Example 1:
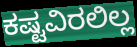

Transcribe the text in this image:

ಕಷ್ಟವಿರಲಿಲ್ಲ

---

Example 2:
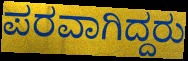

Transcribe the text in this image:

ಪರವಾಗಿದ್ದರು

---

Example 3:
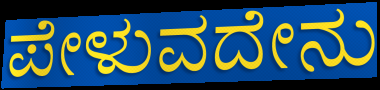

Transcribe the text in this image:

ಪೇಳುವದೇನು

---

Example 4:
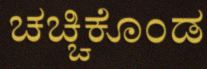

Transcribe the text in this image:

ಚಚ್ಚಿಕೊಂಡ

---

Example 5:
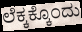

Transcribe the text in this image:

ಲೆಕ್ಕಕ್ಕೊಂದು